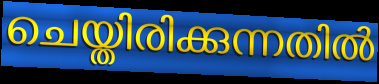
ചെയ്തിരിക്കുന്നതിൽ